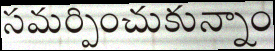
సమర్పించుకున్నాం